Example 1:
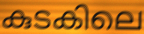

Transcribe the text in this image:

കുടകിലെ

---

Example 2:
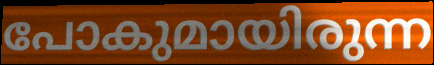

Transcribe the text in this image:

പോകുമായിരുന്ന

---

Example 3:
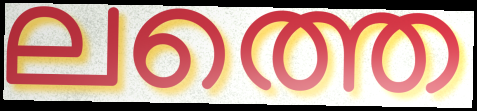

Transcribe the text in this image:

ലത്തെ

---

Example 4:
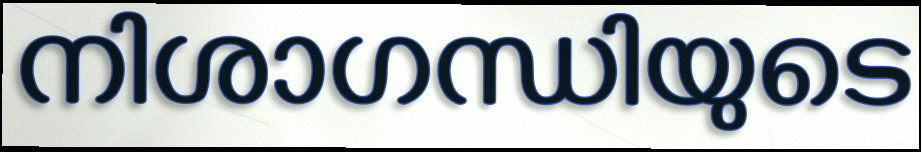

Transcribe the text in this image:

നിശാഗന്ധിയുടെ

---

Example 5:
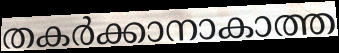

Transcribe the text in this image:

തകർക്കാനാകാത്ത